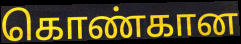
கொண்கான